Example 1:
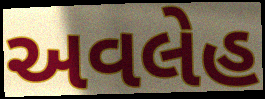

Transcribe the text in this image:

અવલેહ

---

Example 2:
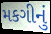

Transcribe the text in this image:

મકગીનું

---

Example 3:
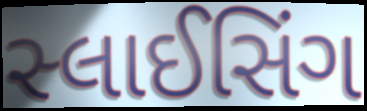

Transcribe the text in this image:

સ્લાઈસિંગ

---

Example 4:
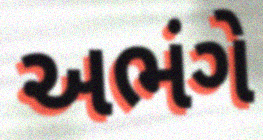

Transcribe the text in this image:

અભંગે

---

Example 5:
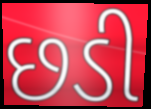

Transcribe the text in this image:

છડી